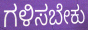
ಗಳಿಸಬೇಕು